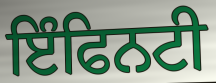
ਇੰਫਿਨਟੀ